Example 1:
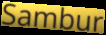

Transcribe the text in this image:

Sambur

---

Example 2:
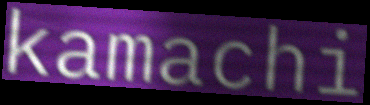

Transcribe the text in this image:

kamachi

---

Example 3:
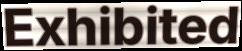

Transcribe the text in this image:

Exhibited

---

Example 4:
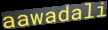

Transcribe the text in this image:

aawadali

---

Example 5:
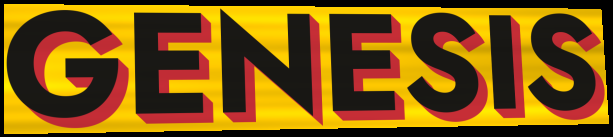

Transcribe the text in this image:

GENESIS